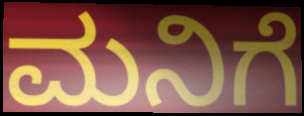
ಮನಿಗೆ